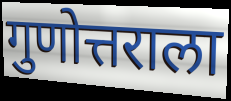
गुणोत्तराला